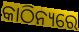
କାଠିନ୍ୟରେ